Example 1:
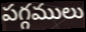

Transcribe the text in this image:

పగ్గములు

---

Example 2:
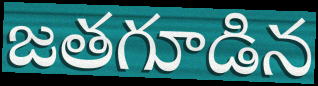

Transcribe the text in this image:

జతగూడిన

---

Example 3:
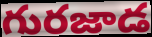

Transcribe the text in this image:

గురజాడ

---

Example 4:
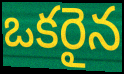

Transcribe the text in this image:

ఒకరైన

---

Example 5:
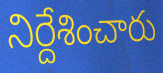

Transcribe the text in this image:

నిర్దేశించారు